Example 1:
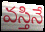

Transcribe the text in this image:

వస్తినే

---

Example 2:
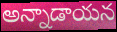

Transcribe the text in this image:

అన్నాడాయన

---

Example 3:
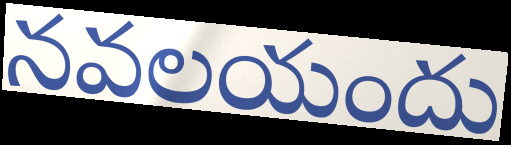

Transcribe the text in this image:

నవలయందు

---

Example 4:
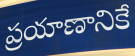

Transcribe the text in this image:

ప్రయాణానికే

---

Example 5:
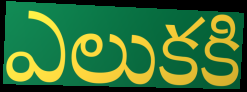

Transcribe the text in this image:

ఎలుకకి